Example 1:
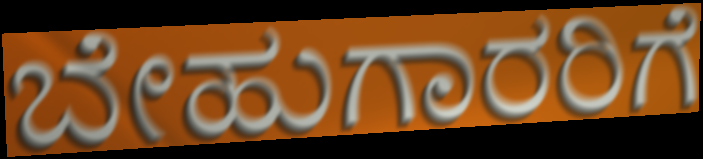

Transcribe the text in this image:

ಬೇಹುಗಾರರಿಗೆ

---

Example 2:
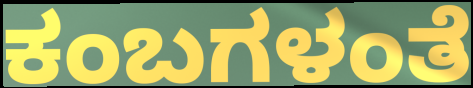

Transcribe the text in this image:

ಕಂಬಗಳಂತೆ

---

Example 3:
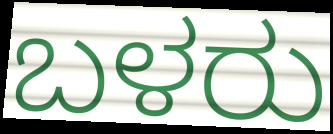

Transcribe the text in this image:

ಬಳರು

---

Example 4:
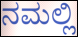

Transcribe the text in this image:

ನಮಲ್ಲಿ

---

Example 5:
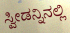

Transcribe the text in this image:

ಸ್ವೀಡನ್ನಿನಲ್ಲಿ